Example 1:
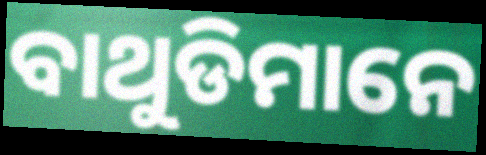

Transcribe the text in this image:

ବାଥୁଡିମାନେ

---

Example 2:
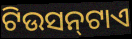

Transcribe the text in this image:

ଟିଉସନ୍‍ଟାଏ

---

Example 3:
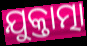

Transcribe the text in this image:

ଯୁକ୍ତାତ୍ମା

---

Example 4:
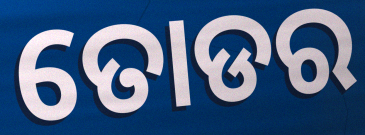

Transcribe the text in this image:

ତୋଡର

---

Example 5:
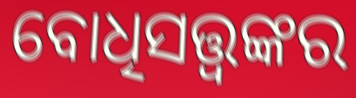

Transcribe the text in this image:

ବୋଧିସତ୍ତ୍ଵଙ୍କର